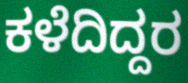
ಕಳೆದಿದ್ದರ